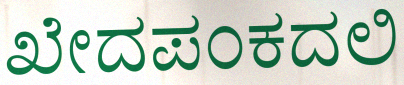
ಖೇದಪಂಕದಲಿ